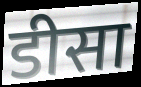
डीसा